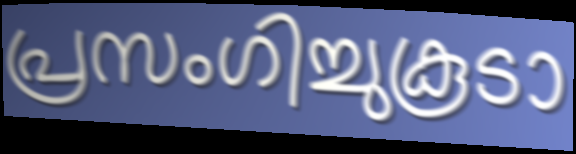
പ്രസംഗിച്ചുകൂടാ